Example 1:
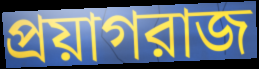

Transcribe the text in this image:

প্রয়াগরাজ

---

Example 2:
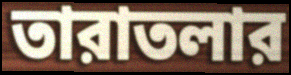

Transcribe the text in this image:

তারাতলার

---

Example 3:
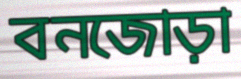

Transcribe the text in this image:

বনজোড়া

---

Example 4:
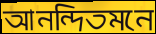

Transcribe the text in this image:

আনন্দিতমনে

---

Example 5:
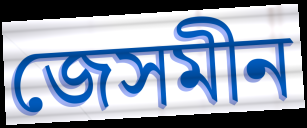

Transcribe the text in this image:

জেসমীন